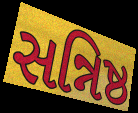
સન્નિષ્ઠ